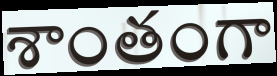
శాంతంగా